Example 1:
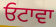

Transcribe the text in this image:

ਓਟਾਵਾ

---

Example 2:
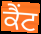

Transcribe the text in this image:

ਕੈਂਟ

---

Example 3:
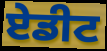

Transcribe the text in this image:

ਏਡੀਟ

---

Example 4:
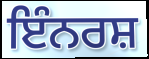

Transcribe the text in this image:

ਇੰਨਰਸ਼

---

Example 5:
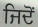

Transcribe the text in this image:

ਜਿਦੋਂ